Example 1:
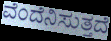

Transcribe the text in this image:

ವೆಂದೆನಿಸುತ್ತದೆ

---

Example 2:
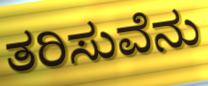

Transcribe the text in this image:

ತರಿಸುವೆನು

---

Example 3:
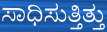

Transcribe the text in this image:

ಸಾಧಿಸುತ್ತಿತ್ತು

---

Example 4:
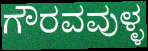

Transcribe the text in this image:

ಗೌರವವುಳ್ಳ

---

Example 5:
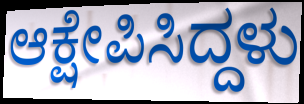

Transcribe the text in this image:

ಆಕ್ಷೇಪಿಸಿದ್ದಳು